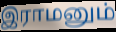
இராமனும்